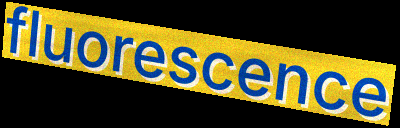
fluorescence